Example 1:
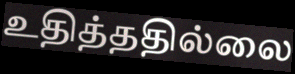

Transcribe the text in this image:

உதித்ததில்லை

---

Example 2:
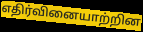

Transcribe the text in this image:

எதிர்வினையாற்றின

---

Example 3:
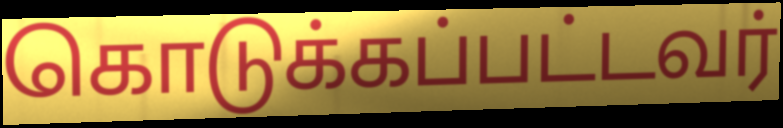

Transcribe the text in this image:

கொடுக்கப்பட்டவர்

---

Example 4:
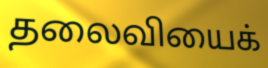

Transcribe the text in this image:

தலைவியைக்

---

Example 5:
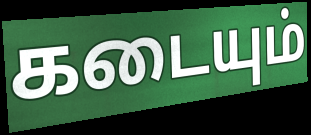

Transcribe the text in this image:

கடையும்